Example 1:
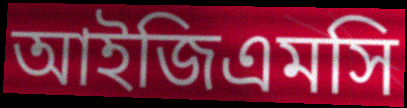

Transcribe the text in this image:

আইজিএমসি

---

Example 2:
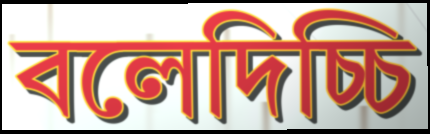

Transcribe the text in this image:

বলেদিচ্চি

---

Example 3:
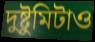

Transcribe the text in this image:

দুষ্টুমিটাও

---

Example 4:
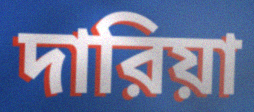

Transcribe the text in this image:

দারিয়া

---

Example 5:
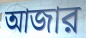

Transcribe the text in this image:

আজার